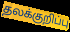
தலக்குறிப்பு